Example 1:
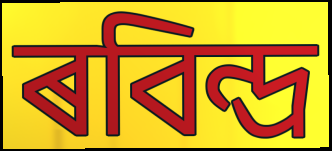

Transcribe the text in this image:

ৰবিন্দ্ৰ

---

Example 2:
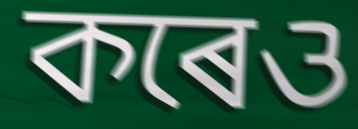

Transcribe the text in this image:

কৰেও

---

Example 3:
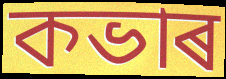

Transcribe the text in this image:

কভাৰ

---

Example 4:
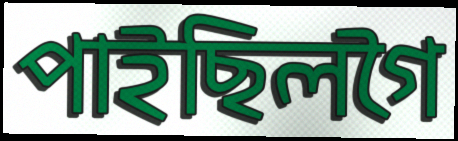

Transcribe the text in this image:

পাইছিলগৈ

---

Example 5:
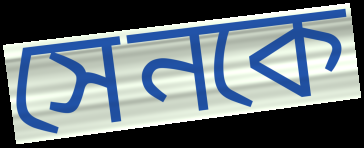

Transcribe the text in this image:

সেনকে